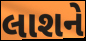
લાશને